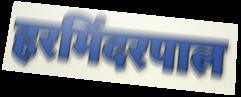
हरमिंदरपाल